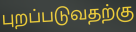
புறப்படுவதற்கு